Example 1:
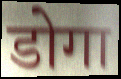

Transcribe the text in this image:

डोगा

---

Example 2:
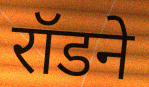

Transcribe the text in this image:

रॉडने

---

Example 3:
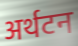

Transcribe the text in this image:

अर्थटन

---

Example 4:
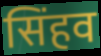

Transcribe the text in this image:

सिंहव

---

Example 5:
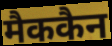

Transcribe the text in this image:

मैककैन